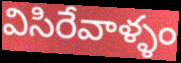
విసిరేవాళ్ళం